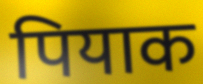
पियाक